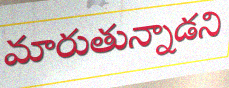
మారుతున్నాడని